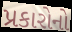
પ્રકારોનો